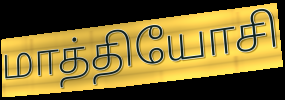
மாத்தியோசி